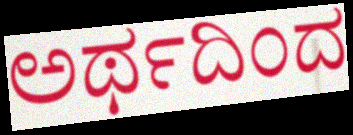
ಅರ್ಥದಿಂದ